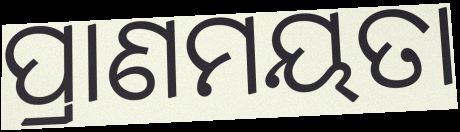
ପ୍ରାଣମୟତା